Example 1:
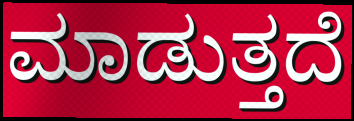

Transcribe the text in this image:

ಮಾಡುತ್ತದೆ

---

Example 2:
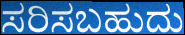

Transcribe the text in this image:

ಸರಿಸಬಹುದು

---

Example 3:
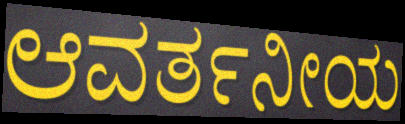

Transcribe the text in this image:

ಆವರ್ತನೀಯ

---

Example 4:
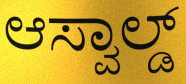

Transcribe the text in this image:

ಆಸ್ವಾಲ್ಡ್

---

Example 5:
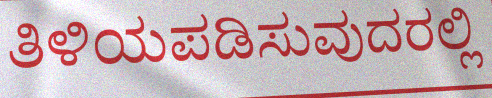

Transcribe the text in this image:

ತಿಳಿಯಪಡಿಸುವುದರಲ್ಲಿ